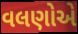
વલણોએ